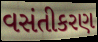
વસંતીકરણ